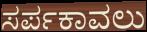
ಸರ್ಪಕಾವಲು